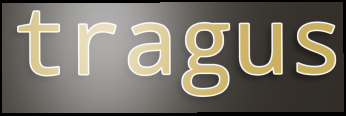
tragus